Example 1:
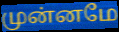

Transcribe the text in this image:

முன்னமே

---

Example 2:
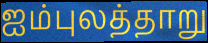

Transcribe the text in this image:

ஐம்புலத்தாறு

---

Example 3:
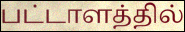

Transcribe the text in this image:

பட்டாளத்தில்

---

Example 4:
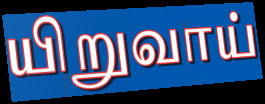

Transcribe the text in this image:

யிறுவாய்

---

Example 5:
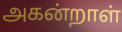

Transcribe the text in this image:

அகன்றாள்